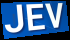
JEV